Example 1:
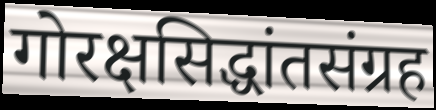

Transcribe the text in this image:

गोरक्षसिद्धांतसंग्रह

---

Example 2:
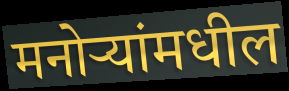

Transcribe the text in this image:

मनोऱ्यांमधील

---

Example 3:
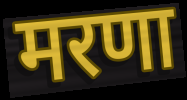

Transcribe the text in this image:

मरणा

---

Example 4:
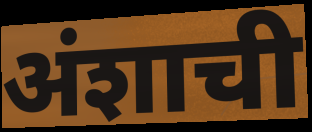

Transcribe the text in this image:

अंशाची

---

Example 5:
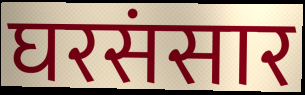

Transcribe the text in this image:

घरसंसार